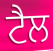
ਟੈਲ